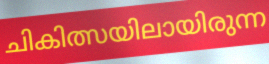
ചികിത്സയിലായിരുന്ന